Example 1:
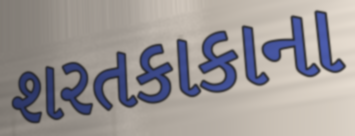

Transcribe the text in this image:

શરતકાકાના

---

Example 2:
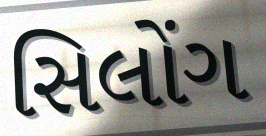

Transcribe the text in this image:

સિલોંગ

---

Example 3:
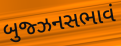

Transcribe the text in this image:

બુજ્ઝનસભાવં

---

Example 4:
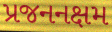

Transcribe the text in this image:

પ્રજનનક્ષમ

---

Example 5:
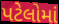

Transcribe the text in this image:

પટેલોમાં